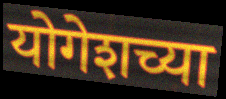
योगेशच्या